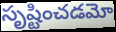
సృష్టించడమో